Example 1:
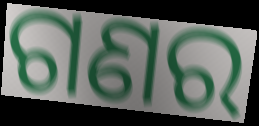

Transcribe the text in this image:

ଗଣର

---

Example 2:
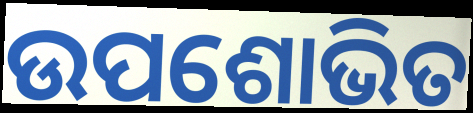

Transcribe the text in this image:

ଉପଶୋଭିତ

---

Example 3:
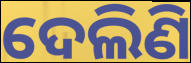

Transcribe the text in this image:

ଦେଲିଣି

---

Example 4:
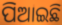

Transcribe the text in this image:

ପିଆଇଛି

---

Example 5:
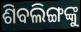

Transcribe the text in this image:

ଶିବଲିଙ୍ଗଙ୍କୁ